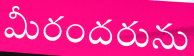
మీరందరును